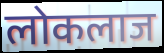
लोकलाज